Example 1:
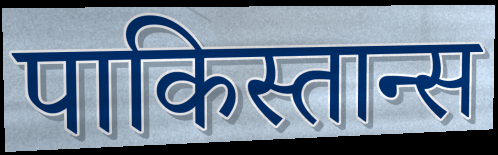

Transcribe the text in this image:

पाकिस्तान्स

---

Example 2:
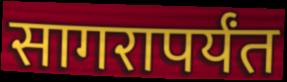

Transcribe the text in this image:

सागरापर्यंत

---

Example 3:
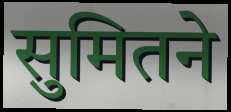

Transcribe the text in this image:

सुमितने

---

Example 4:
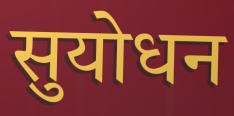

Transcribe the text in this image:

सुयोधन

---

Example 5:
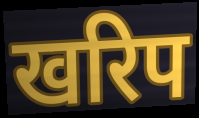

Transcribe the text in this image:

खरिप